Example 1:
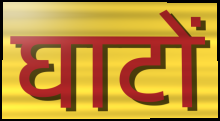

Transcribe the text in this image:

घाटों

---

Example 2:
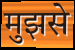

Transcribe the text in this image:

मुझसे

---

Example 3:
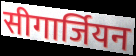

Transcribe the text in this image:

सीगार्जियन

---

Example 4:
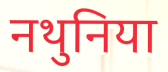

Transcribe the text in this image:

नथुनिया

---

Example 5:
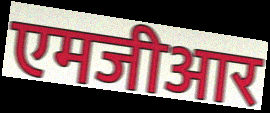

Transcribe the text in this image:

एमजीआर